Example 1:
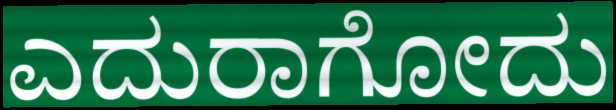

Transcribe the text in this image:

ಎದುರಾಗೋದು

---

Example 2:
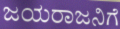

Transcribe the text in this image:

ಜಯರಾಜನಿಗೆ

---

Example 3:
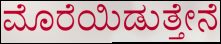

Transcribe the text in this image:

ಮೊರೆಯಿಡುತ್ತೇನೆ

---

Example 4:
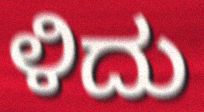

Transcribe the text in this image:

ಳಿದು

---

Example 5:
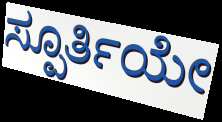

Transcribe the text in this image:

ಸ್ಪೂರ್ತಿಯೇ